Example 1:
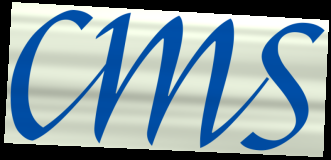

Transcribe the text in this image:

cms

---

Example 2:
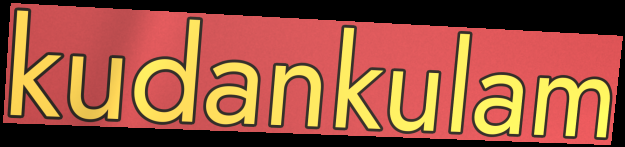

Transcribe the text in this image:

kudankulam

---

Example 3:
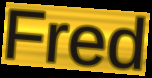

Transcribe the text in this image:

Fred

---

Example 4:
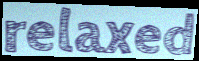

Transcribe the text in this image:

relaxed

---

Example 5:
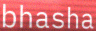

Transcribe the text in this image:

bhasha